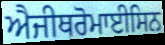
ਐਜੀਥਰੋਮਾਈਸਿਨ